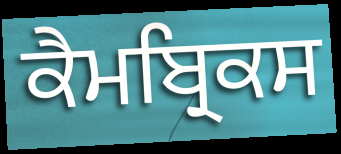
ਕੈਮਬ੍ਰਿਕਸ